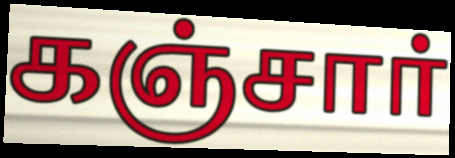
கஞ்சார்